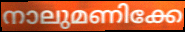
നാലുമണിക്കേ